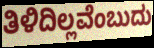
ತಿಳಿದಿಲ್ಲವೆಂಬುದು